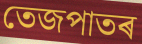
তেজপাতৰ